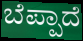
ಬೆಪ್ಪಾದೆ